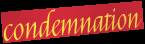
condemnation